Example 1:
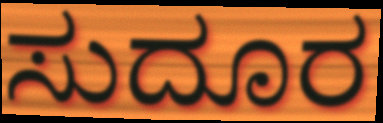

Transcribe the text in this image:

ಸುದೂರ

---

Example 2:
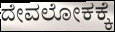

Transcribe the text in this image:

ದೇವಲೋಕಕ್ಕೆ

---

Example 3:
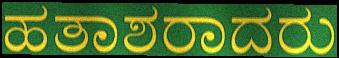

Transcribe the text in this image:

ಹತಾಶರಾದರು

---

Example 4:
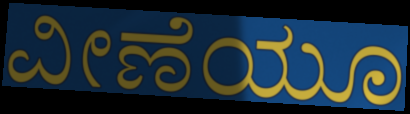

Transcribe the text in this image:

ವೀಣೆಯೂ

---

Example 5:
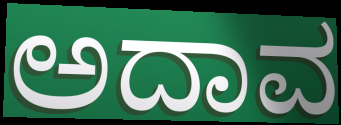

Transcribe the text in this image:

ಅದಾವ